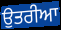
ਉਤਰੀਆ